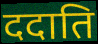
ददाति